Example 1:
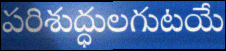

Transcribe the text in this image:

పరిశుద్ధులగుటయే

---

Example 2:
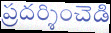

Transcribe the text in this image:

ప్రదర్శించెడి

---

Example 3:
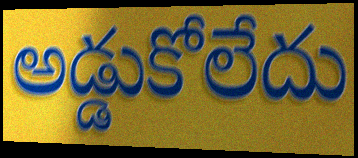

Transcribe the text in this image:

అడ్డుకోలేదు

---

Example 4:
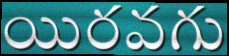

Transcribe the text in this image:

యిరవగు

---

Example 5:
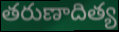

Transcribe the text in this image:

తరుణాదిత్య